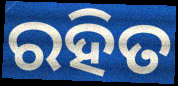
ରହିତ